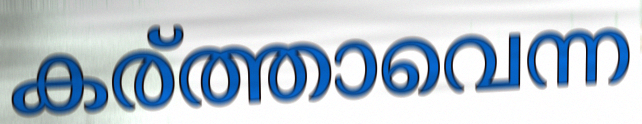
കര്ത്താവെന്ന